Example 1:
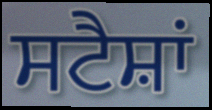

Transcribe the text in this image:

ਸਟੈਸ਼ਾਂ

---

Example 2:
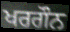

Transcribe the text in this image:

ਖਰਗੌਨ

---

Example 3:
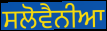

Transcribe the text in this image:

ਸਲੋਵੈਨੀਆ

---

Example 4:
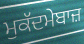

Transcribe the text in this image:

ਮੁਕੱਦਮੇਬਾਜ਼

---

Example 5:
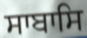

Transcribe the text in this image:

ਸਾਬਾਸਿ